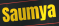
Saumya